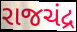
રાજચંદ્ર